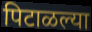
पिटाळल्या